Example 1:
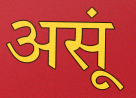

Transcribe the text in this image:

असूं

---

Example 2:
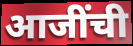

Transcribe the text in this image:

आजींची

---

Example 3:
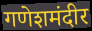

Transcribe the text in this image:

गणेशमंदीर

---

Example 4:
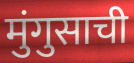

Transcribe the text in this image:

मुंगुसाची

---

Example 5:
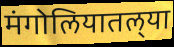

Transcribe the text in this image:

मंगोलियातल्या